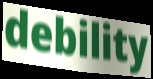
debility